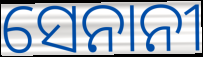
ସେନାନୀ